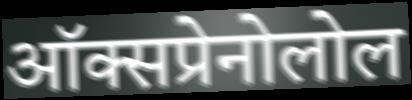
ऑक्सप्रेनोलोल